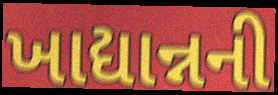
ખાદ્યાન્નની